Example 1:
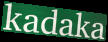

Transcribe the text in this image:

kadaka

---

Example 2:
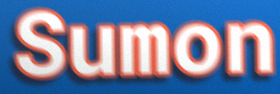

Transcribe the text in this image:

Sumon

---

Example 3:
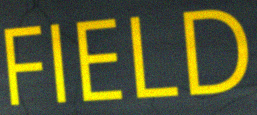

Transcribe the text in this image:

FIELD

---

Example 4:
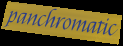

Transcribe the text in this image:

panchromatic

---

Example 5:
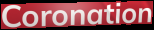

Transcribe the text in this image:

Coronation